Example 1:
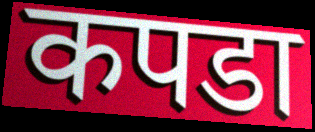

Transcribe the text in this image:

कपडा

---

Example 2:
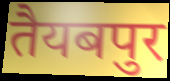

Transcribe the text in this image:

तैयबपुर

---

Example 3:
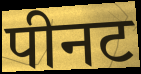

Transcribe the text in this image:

पीनट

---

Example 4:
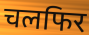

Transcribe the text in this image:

चलफिर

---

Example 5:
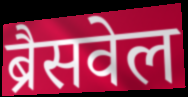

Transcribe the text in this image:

ब्रैसवेल